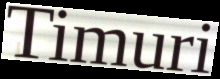
Timuri